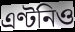
এণ্টনিও